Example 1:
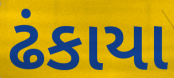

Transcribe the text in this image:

ઢંકાયા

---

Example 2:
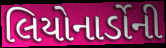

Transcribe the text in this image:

લિયોનાર્ડોની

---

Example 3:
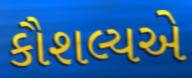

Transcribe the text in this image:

કૌશલ્યએ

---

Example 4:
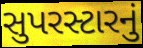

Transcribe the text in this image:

સુપરસ્ટારનું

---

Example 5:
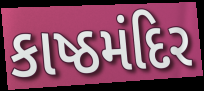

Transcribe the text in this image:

કાષ્ઠમંદિર